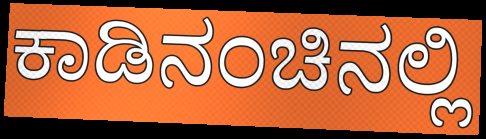
ಕಾಡಿನಂಚಿನಲ್ಲಿ